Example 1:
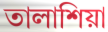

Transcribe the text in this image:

তালাশিয়া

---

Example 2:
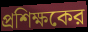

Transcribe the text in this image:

প্রশিক্ষকের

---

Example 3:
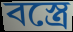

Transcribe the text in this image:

বস্ত্রে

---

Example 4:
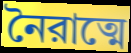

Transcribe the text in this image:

নৈরাত্মে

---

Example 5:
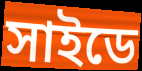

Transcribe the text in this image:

সাইডে